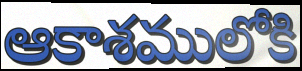
ఆకాశములోకి